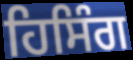
ਹਿਸਿੰਗ